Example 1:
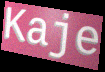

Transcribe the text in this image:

Kaje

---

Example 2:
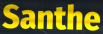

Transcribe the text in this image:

Santhe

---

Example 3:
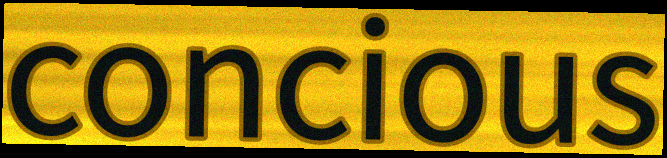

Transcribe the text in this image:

concious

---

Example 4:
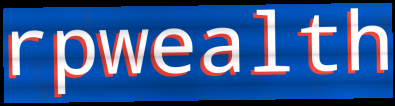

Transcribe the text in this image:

rpwealth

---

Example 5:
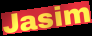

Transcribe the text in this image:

Jasim